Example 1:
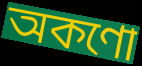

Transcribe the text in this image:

অকণো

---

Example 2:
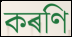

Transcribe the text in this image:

কৰণি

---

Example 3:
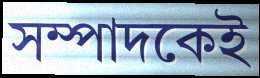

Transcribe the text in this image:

সম্পাদকেই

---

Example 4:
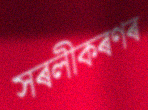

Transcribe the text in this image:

সৰলীকৰণৰ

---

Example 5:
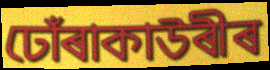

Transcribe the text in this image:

ঢোঁৰাকাউৰীৰ